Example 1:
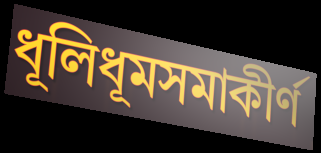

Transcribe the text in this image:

ধূলিধূমসমাকীর্ণ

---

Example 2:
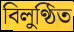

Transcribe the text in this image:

বিলুণ্ঠিত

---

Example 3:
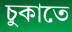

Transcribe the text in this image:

চুকাতে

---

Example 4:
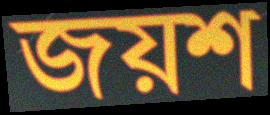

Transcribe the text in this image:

জয়শ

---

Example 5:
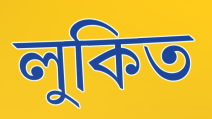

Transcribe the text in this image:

লুকিত